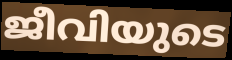
ജീവിയുടെ